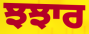
ਝਝਾਰ